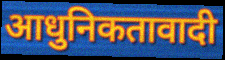
आधुनिकतावादी